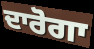
ਦਾਰੋਗਾ